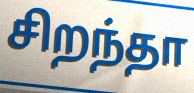
சிறந்தா